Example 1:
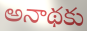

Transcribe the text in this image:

అనాథకు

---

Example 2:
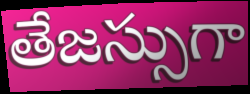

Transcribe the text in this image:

తేజస్సుగా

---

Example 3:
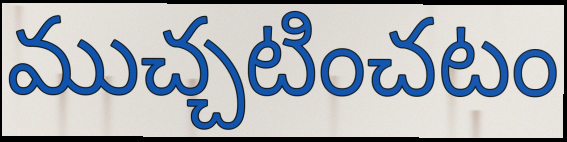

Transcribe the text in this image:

ముచ్చటించటం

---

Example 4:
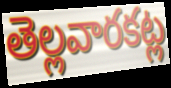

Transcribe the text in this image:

తెల్లవారకట్ల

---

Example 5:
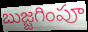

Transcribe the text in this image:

బుజ్జగింపూ